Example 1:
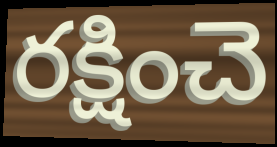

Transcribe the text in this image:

రక్షించె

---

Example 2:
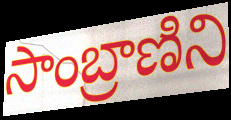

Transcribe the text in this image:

సాంబ్రాణిని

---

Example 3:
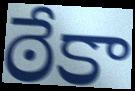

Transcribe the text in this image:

ఠేకా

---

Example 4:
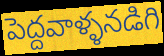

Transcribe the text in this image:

పెద్దవాళ్ళనడిగి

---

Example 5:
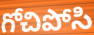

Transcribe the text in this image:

గోచిపోసి